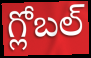
గ్లోబల్